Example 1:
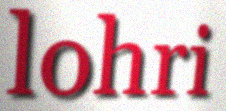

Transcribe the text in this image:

lohri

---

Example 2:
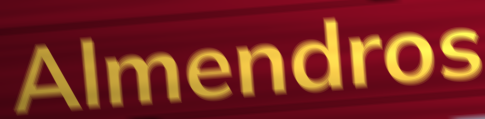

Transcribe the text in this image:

Almendros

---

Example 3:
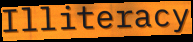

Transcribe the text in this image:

Illiteracy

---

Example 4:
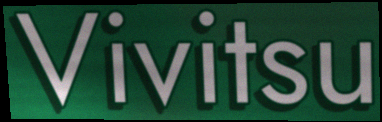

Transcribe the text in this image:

Vivitsu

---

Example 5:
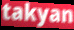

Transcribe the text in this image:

takyan